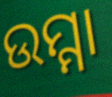
ଉମ୍ମା